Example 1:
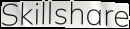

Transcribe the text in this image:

Skillshare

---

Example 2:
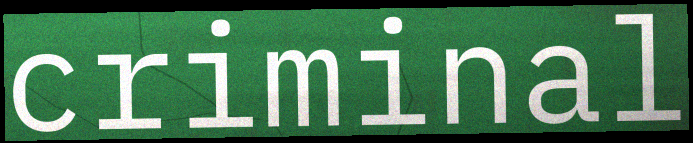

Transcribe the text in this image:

criminal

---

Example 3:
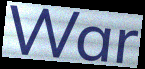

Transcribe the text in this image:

War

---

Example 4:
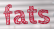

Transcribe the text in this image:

fats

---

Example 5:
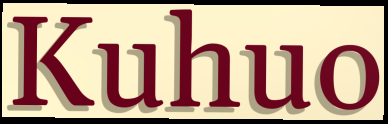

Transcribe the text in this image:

Kuhuo